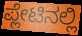
ಪ್ಲೇಟಿನಲ್ಲಿ